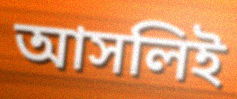
আসলিই